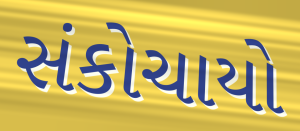
સંકોચાયો